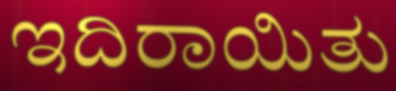
ಇದಿರಾಯಿತು